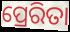
ପ୍ରେରିତା